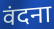
वंदना